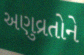
અણુવ્રતોને